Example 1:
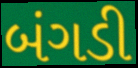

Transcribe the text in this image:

બંગડી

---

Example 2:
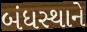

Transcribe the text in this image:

બંધસ્થાને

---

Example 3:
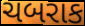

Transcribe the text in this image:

ચબરાક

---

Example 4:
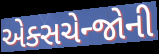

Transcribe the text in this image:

એક્સચેન્જોની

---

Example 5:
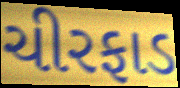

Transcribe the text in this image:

ચીરફાડ